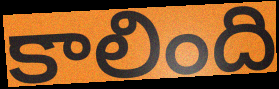
కాలింది